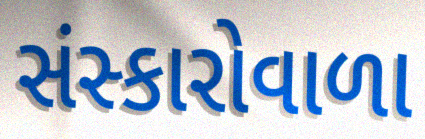
સંસ્કારોવાળા